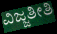
ವಿಜ್ಜತೀತಿ